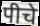
पीचे